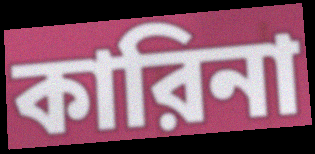
কারিনা